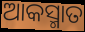
ଆକସ୍ମାତ